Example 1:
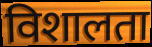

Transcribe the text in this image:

विशालता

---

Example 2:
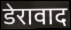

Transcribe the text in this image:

डेरावाद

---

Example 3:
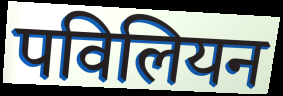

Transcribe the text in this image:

पविलियन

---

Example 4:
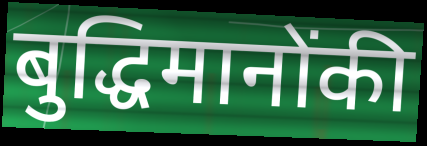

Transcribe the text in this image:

बुद्धिमानोंकी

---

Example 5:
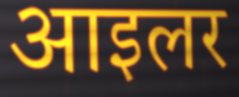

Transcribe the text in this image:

आइलर